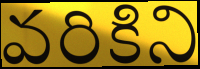
వరికిని